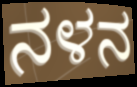
ನಳನ